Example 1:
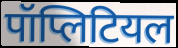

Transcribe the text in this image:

पॉप्लिटियल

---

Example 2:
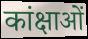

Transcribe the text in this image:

कांक्षाओं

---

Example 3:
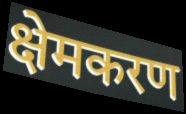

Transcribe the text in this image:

क्षेमकरण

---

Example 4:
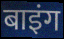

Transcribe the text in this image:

बाइंग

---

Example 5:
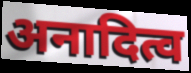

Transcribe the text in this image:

अनादित्व